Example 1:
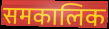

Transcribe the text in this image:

समकालिक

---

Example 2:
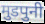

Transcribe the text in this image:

मुडपुनी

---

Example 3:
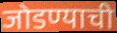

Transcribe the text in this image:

जोडण्याची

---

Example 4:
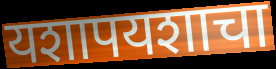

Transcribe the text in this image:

यशापयशाचा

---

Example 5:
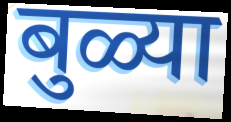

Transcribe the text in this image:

बुळ्या